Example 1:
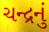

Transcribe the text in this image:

ચન્દ્રનું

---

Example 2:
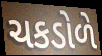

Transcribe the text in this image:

ચકડોળે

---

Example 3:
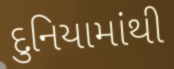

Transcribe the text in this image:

દુનિયામાંથી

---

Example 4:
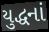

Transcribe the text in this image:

યુદ્ધનાં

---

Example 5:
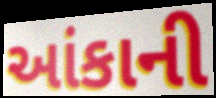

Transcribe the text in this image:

આંકાની